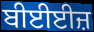
ਬੀਈਈਜ਼